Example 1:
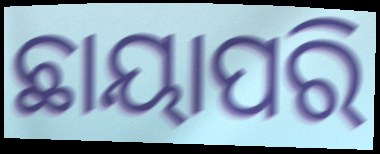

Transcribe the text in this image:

ଛାୟାପରି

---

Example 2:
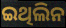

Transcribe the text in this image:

ଇଥିଲିନ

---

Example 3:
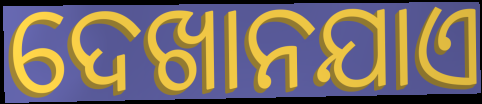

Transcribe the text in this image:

ଦେଖାନଯାଏ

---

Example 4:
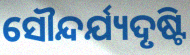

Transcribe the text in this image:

ସୌନ୍ଦର୍ଯ୍ୟଦୃଷ୍ଟି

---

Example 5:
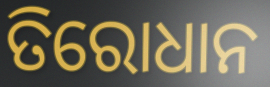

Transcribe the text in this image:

ତିରୋଧାନ